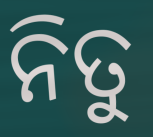
ନିତୁ